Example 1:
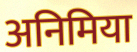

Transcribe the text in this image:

अनिमिया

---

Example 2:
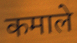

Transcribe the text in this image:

कमाले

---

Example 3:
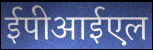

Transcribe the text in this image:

ईपीआईएल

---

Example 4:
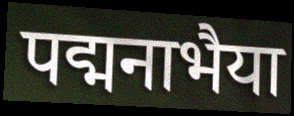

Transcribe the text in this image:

पद्मनाभैया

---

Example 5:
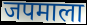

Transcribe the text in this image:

जपमाला